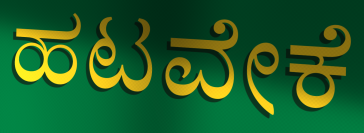
ಹಟವೇಕೆ